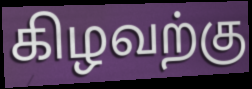
கிழவற்கு